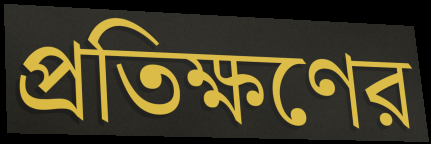
প্রতিক্ষণের